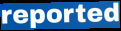
reported